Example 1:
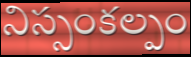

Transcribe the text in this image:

నిస్సంకల్పం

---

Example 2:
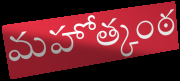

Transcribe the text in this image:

మహోత్కంఠ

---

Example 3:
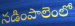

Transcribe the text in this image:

నడింపాలెంలో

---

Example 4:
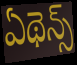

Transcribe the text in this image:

ఏథెన్స్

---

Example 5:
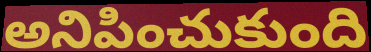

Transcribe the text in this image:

అనిపించుకుంది